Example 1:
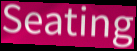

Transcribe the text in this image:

Seating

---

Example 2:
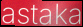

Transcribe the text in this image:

astaka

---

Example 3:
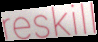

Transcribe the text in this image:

reskill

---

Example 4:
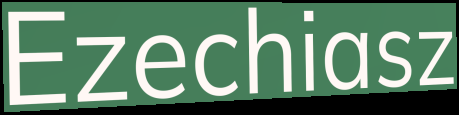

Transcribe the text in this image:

Ezechiasz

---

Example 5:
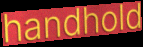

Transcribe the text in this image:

handhold